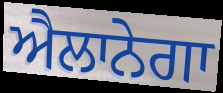
ਐਲਾਨੇਗਾ